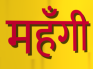
महँगी